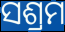
ସଶ୍ରମ